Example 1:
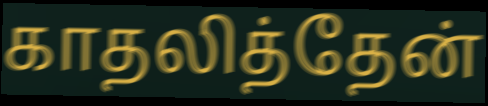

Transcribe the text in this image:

காதலித்தேன்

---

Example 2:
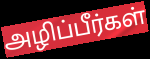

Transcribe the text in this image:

அழிப்பீர்கள்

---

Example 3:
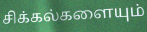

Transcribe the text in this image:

சிக்கல்களையும்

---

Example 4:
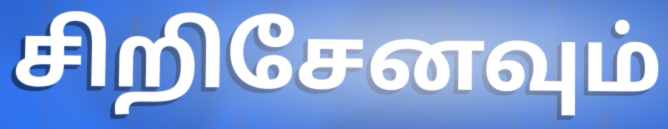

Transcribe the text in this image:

சிறிசேனவும்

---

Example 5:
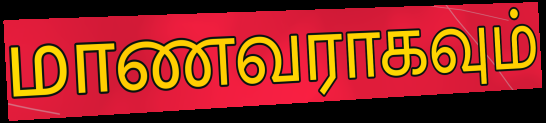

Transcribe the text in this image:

மாணவராகவும்